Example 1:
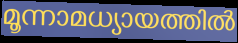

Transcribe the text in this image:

മൂന്നാമധ്യായത്തിൽ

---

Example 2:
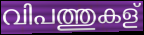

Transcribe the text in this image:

വിപത്തുകള്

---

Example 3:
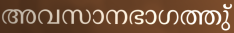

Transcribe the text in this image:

അവസാനഭാഗത്തു്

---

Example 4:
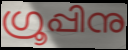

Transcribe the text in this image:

ഗ്രൂപ്പിനു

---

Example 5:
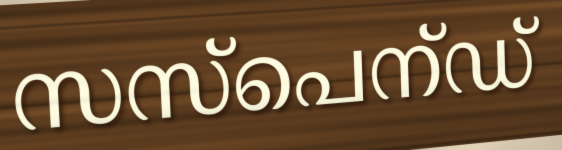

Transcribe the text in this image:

സസ്പെന്ഡ്